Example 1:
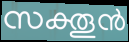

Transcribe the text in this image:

സക്തൂൻ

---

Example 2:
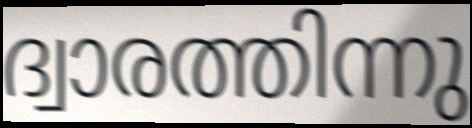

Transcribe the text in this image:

ദ്വാരത്തിന്നു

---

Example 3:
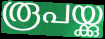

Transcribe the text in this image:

രൂപയ്ക്കു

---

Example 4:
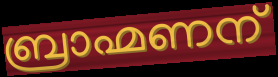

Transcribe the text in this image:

ബ്രാഹ്മണന്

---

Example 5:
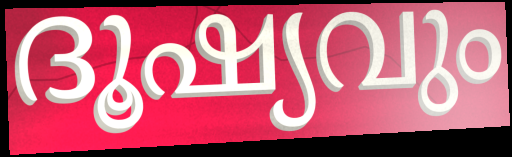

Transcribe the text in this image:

ദൂഷ്യവും